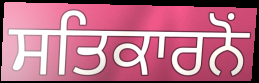
ਸਤਿਕਾਰਨੋਂ